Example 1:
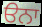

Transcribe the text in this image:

ੳਨਾ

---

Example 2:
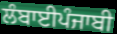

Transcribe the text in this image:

ਲੰਬਾਈਪੰਜਾਬੀ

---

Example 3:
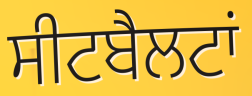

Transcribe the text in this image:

ਸੀਟਬੈਲਟਾਂ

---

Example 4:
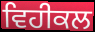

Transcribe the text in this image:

ਵਿਹੀਕਲ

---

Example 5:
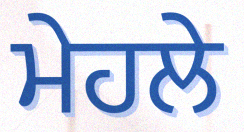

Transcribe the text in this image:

ਮੇਹਲੇ